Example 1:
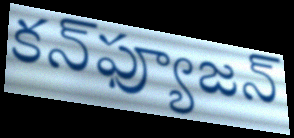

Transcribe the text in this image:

కన్‌ఫ్యూజన్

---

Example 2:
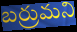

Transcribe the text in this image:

బర్రుమని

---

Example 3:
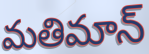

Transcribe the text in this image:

మతిమాన్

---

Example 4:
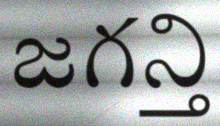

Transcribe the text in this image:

జగన్తి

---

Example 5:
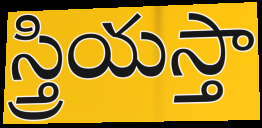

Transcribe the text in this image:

స్త్రియస్తా